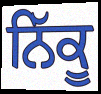
ਨਿੱਕੂ